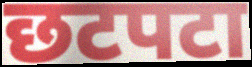
छटपटा